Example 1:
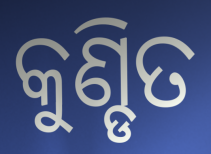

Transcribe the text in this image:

କୁଣ୍ଡିତ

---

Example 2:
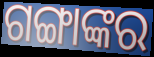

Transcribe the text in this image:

ଗଙ୍ଗାଙ୍କର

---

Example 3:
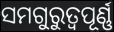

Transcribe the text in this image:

ସମଗୁରୁତ୍ଵପୂର୍ଣ୍ଣ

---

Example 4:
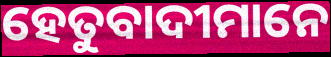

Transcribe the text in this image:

ହେତୁବାଦୀମାନେ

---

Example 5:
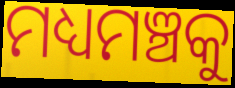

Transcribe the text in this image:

ମଧ୍ୟମଞ୍ଚକୁ